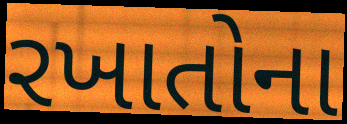
રખાતોના